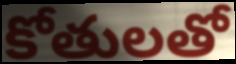
కోతులతో